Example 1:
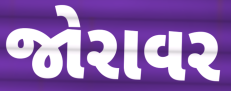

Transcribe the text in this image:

જોરાવર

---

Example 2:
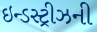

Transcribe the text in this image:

ઇન્ડસ્ટ્રીઝની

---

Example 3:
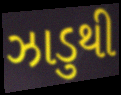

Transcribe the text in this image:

ઝાડુથી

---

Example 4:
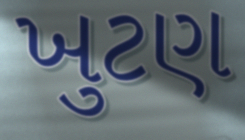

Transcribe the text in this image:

ખુટણ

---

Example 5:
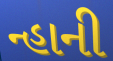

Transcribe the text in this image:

ન્હાની